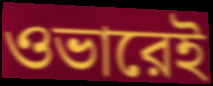
ওভারেই